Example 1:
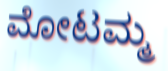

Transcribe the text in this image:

ಮೋಟಮ್ಮ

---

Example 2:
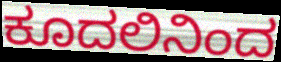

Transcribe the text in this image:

ಕೂದಲಿನಿಂದ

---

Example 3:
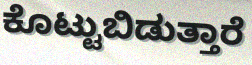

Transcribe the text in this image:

ಕೊಟ್ಟುಬಿಡುತ್ತಾರೆ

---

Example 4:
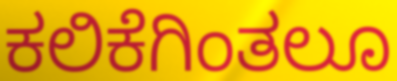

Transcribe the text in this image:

ಕಲಿಕೆಗಿಂತಲೂ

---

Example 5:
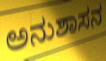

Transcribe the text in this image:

ಅನುಶಾಸನ